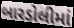
બારડોલીમાં